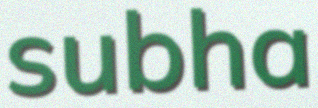
subha